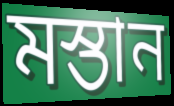
মস্তান